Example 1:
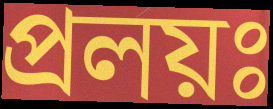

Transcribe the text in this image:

প্রলয়ঃ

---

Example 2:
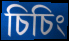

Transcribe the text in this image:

চিচিং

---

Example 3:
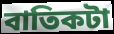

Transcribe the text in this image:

বাতিকটা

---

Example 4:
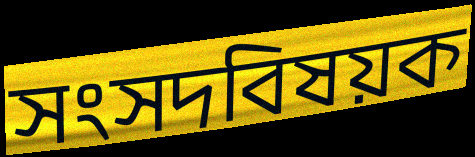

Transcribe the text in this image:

সংসদবিষয়ক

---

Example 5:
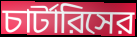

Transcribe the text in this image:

চার্টারিসের